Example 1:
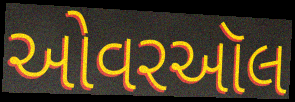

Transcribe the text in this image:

ઓવરઑલ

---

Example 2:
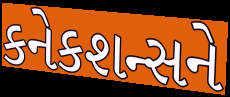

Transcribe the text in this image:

કનેકશન્સને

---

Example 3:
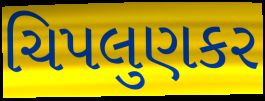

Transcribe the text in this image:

ચિપલુણકર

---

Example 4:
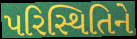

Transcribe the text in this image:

પરિસ્થિતિને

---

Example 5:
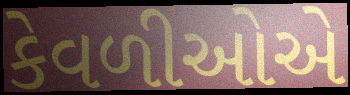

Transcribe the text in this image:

કેવળીઓએ